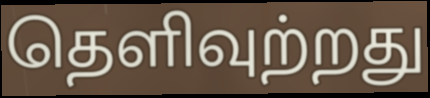
தெளிவுற்றது